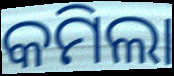
କମିଲା